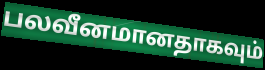
பலவீனமானதாகவும்